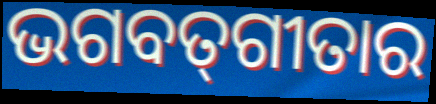
ଭଗବତ୍‍ଗୀତାର